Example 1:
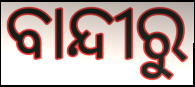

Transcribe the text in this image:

ବାନ୍ଦୀରୁ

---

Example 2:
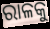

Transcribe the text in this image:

ରାଳକୁ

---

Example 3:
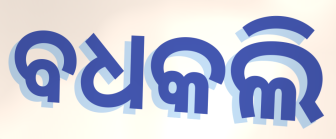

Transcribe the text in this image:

ବଧକଲି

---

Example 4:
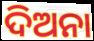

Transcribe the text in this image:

ଦିଅନା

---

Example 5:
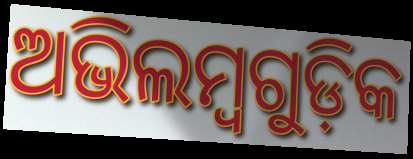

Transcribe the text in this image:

ଅଭିଲମ୍ବଗୁଡ଼ିକ